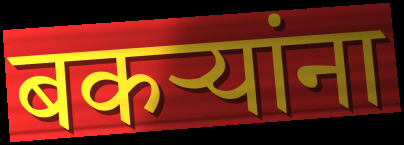
बकर्‍यांना